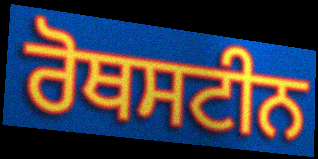
ਰੋਥਸਟੀਨ